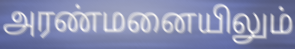
அரண்மனையிலும்